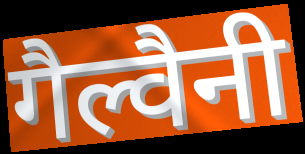
गैल्वैनी